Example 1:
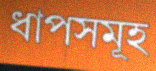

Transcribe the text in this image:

ধাপসমূহ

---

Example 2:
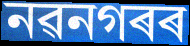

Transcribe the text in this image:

নৱনগৰৰ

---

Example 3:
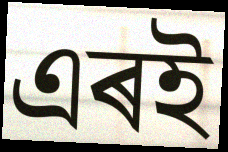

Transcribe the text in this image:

এৰই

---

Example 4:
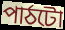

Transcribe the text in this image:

পাঠটো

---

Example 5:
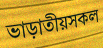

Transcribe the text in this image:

ভাড়াতীয়সকল